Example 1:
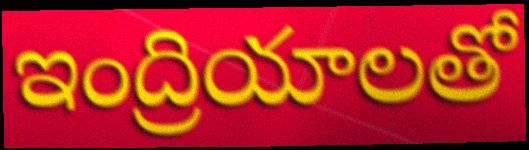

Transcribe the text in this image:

ఇంద్రియాలతో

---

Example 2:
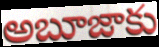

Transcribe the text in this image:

అబూజాకు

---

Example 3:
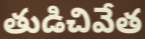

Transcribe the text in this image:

తుడిచివేత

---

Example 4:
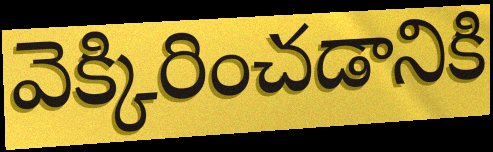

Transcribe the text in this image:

వెక్కిరించడానికి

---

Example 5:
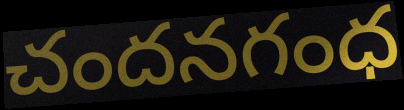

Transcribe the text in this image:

చందనగంధ